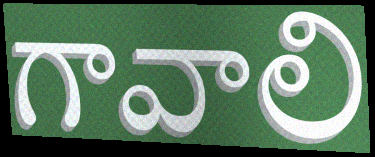
గావాలి